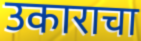
उकाराचा